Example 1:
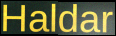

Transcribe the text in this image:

Haldar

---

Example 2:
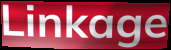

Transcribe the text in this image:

Linkage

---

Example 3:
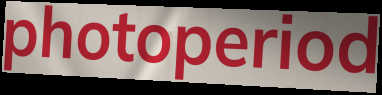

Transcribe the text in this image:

photoperiod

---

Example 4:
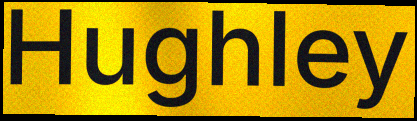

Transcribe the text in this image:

Hughley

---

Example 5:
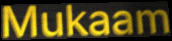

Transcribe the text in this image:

Mukaam